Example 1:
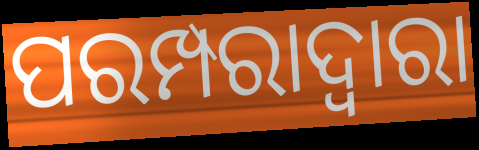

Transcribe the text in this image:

ପରମ୍ପରାଦ୍ବାରା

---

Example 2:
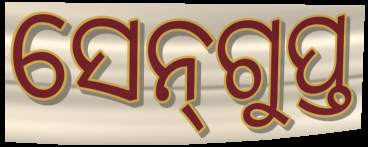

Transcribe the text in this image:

ସେନ୍‌ଗୁପ୍ତ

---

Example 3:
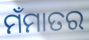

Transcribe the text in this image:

ମଁମାତର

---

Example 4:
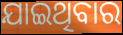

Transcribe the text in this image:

ଯାଇଥିବାର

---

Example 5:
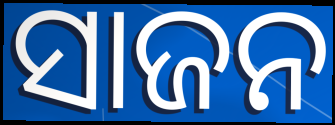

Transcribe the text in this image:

ସାଜନ